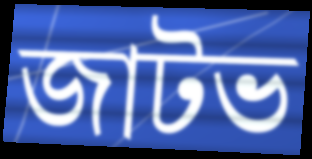
জাটভ